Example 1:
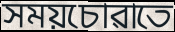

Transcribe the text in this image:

সময়চোৱাতে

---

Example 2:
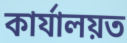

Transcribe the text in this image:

কাৰ্যালয়ত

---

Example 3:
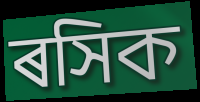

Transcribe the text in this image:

ৰসিক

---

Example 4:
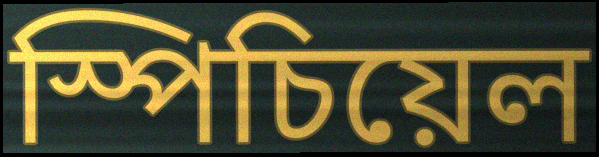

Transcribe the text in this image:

স্পিচিয়েল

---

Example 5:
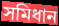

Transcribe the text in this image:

সমিধান